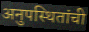
अनुपस्थितांची